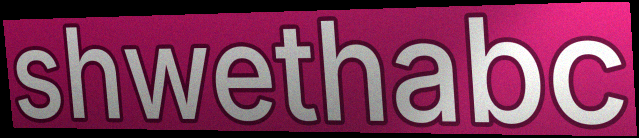
shwethabc